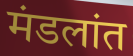
मंडलांत